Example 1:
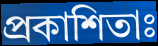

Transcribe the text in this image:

প্রকাশিতাঃ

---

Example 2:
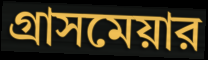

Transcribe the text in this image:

গ্রাসমেয়ার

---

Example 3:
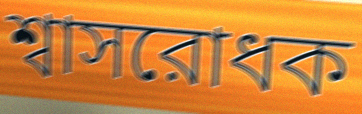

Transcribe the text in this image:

শ্বাসরোধক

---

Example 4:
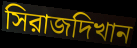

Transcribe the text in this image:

সিরাজদিখান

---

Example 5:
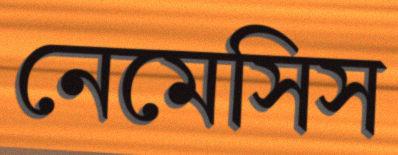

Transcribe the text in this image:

নেমেসিস